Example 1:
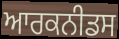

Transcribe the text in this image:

ਆਰਕਨੀਡਸ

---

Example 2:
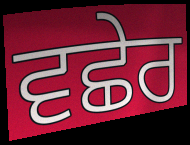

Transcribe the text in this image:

ਵਛੇਰ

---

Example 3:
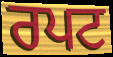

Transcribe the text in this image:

ਰਪਟ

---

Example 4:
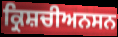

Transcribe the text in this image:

ਕ੍ਰਿਸ਼ਚੀਅਨਸਨ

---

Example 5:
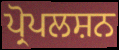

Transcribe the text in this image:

ਪ੍ਰੋਪਲਸ਼ਨ